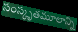
సంస్కృతమూలాన్ని